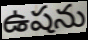
ఉషను